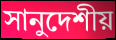
সানুদেশীয়